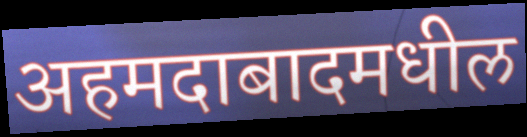
अहमदाबादमधील